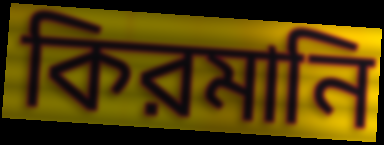
কিরমানি